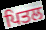
ਪਿਤਲ